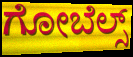
ಗೋಬೆಲ್ಸ್